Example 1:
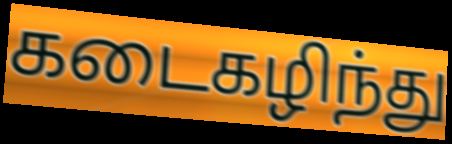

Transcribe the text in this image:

கடைகழிந்து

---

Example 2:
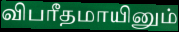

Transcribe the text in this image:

விபரீதமாயினும்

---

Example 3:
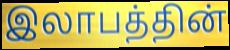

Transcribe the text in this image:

இலாபத்தின்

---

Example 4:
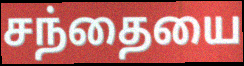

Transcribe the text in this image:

சந்தையை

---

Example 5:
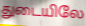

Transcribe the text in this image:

துடையிலே